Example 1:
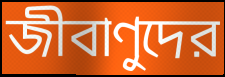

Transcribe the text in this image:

জীবাণুদের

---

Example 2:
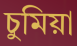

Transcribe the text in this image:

চুমিয়া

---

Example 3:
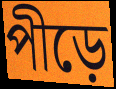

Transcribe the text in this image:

পীড়ে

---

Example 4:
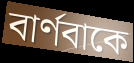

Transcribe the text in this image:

বার্ণবাকে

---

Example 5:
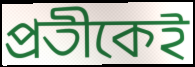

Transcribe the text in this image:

প্রতীকেই